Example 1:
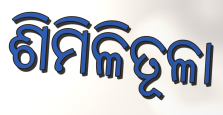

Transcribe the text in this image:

ଶିମିଳିତୂଳା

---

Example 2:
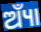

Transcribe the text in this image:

ଅ୍ୟାଁ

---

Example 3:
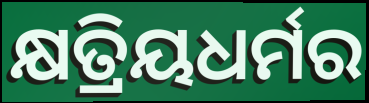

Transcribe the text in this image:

କ୍ଷତ୍ରିୟଧର୍ମର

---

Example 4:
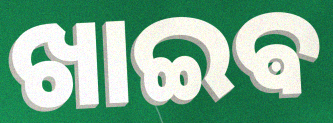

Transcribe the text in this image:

ଖାଇଵ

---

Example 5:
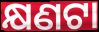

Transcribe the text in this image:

କ୍ଷଣଟା